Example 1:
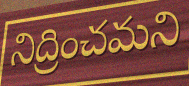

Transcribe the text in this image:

నిద్రించమని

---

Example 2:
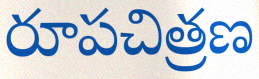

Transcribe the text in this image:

రూపచిత్రణ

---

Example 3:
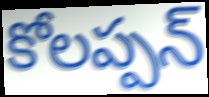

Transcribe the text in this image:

కోలప్పన్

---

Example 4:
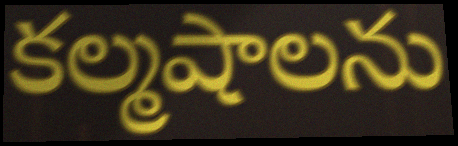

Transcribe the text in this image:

కల్మషాలను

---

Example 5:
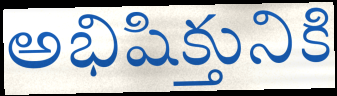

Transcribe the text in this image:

అభిషిక్తునికి